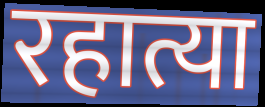
रहात्या